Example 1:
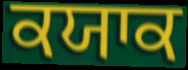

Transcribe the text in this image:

ਕਯਾਕ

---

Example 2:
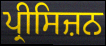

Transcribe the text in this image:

ਪ੍ਰੀਸਿਜ਼ਨ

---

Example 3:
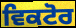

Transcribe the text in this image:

ਵਿਕਟੋਰ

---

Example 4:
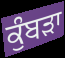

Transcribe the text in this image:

ਕੁੰਬੜਾ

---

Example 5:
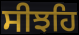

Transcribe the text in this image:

ਸੀਝਹਿ